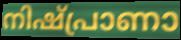
നിഷ്പ്രാണാ